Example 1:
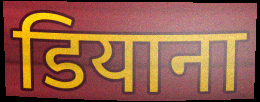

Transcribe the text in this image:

डियाना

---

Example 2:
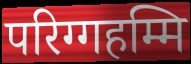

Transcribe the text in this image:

परिग्गहम्मि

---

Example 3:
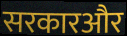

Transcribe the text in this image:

सरकारऔर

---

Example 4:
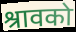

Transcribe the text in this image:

श्रावको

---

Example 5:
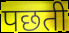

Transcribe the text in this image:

पछती